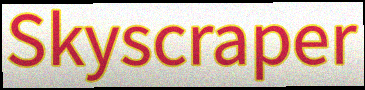
Skyscraper